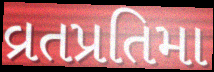
વ્રતપ્રતિમા